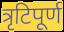
त्रृटिपूर्ण